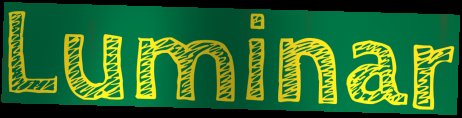
Luminar